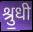
श्रु॒धी